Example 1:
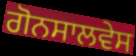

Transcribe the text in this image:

ਗੋਨਸਾਲਵੇਸ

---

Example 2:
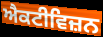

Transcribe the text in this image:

ਐਕਟੀਵਿਜ਼ਨ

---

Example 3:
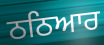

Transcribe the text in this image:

ਠਠਿਆਰ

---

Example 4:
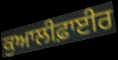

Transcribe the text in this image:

ਕੁਆਲੀਫ਼ਾਈਰ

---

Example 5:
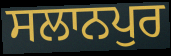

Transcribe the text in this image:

ਸਲਾਨਪੁਰ